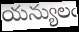
యన్యులఁ